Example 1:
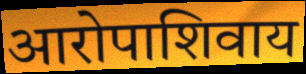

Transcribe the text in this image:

आरोपाशिवाय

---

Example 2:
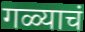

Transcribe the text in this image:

गळ्याचं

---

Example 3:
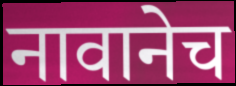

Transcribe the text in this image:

नावानेच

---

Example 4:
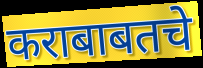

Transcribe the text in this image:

कराबाबतचे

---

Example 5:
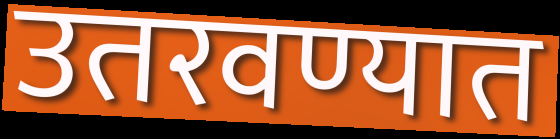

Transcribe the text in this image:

उतरवण्यात